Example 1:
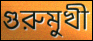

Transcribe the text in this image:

গুরুমুখী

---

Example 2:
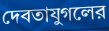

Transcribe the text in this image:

দেবতাযুগলের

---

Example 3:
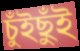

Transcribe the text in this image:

চুঁইছুঁই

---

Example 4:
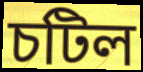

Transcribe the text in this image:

চটিল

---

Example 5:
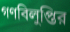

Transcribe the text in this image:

গণবিলুপ্তির